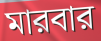
মারবার